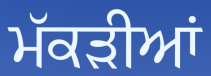
ਮੱਕੜੀਆਂ